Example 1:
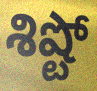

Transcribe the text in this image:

శిష్టో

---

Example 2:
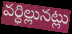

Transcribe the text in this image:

వర్ధిల్లునట్లు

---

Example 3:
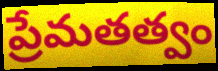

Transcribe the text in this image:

ప్రేమతత్వం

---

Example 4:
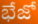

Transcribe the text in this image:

భేజో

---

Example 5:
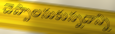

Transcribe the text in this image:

చెప్పాలనుకున్నదాన్ని